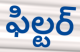
ఫిల్టర్